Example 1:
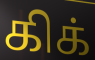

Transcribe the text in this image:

கிக்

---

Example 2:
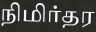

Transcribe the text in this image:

நிமிர்தர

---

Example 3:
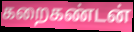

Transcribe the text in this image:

கறைகண்டன்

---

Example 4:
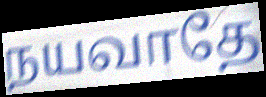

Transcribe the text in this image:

நயவாதே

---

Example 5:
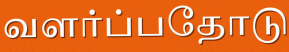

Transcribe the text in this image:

வளர்ப்பதோடு